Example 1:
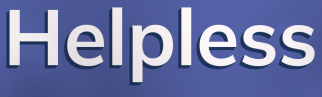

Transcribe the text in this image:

Helpless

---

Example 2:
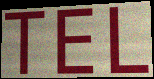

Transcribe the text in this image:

TEL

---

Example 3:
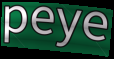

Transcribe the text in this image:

peye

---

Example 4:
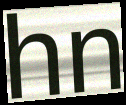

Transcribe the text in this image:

hn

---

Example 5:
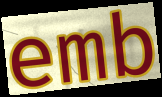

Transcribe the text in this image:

emb